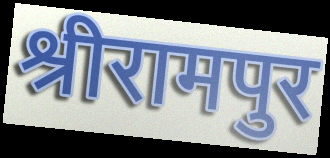
श्रीरामपुर